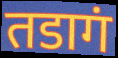
तडागं